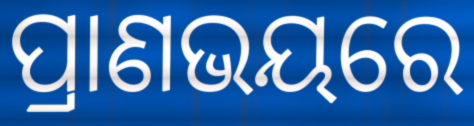
ପ୍ରାଣଭୟରେ